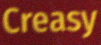
Creasy